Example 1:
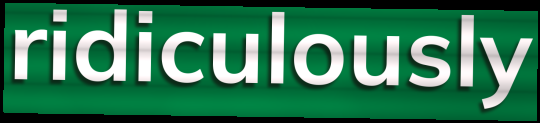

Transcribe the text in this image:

ridiculously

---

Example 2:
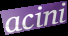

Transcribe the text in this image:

acini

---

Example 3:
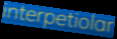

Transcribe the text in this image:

interpetiolar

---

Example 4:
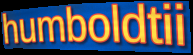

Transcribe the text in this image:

humboldtii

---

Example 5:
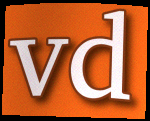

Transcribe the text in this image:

vd